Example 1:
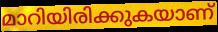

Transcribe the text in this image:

മാറിയിരിക്കുകയാണ്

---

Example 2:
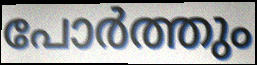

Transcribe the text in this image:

പോർത്തും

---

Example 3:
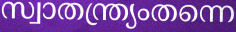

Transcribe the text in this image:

സ്വാതന്ത്ര്യംതന്നെ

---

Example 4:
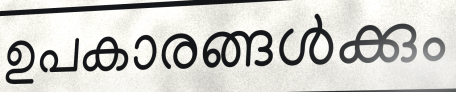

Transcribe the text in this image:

ഉപകാരങ്ങൾക്കും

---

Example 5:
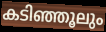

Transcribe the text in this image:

കടിഞ്ഞൂലും